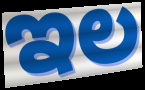
ಇಲ